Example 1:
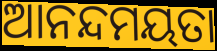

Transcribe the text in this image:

ଆନନ୍ଦମୟତା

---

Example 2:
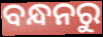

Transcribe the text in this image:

ବନ୍ଧନରୁ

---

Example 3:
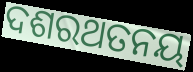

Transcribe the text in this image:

ଦଶରଥତନୟ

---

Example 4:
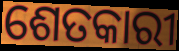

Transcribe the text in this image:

ଶେତକାରୀ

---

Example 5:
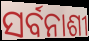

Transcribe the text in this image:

ସର୍ବନାଶୀ